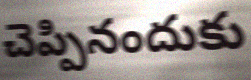
చెప్పినందుకు